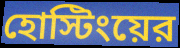
হোস্টিংয়ের